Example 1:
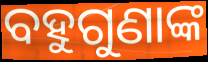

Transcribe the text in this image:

ବହୁଗୁଣାଙ୍କ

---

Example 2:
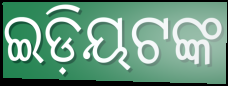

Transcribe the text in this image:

ଇଡ଼ିୟଟଙ୍କ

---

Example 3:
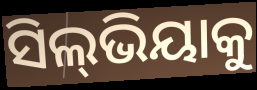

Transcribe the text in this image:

ସିଲ୍‍ଭିୟାକୁ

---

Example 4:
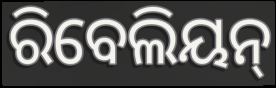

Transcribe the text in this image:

ରିବେଲିୟନ୍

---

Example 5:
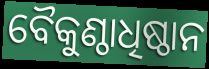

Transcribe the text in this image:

ବୈକୁଣ୍ଠାଧିଷ୍ଠାନ